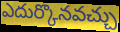
ఎదుర్కొనవచ్చు